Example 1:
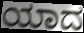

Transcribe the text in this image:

ಯಾದ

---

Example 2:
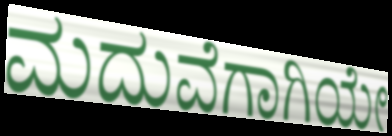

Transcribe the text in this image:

ಮದುವೆಗಾಗಿಯೇ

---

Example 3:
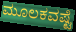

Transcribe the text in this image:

ಮೂಲಕವಷ್ಟೆ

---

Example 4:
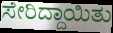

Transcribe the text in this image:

ಸೇರಿದ್ದಾಯಿತು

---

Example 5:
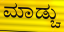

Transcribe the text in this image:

ಮಾಡ್ಚು